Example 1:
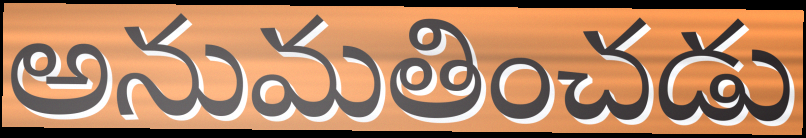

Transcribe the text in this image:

అనుమతించడు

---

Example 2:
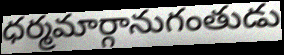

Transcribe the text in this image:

ధర్మమార్గానుగంతుడు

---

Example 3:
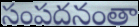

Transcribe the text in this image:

సంపదనంతా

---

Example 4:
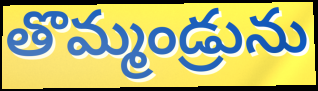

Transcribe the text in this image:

తొమ్మండ్రును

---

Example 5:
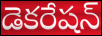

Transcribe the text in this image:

డెకరేషన్